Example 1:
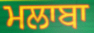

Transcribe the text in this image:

ਮਲਾਬਾ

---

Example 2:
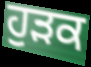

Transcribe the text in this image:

ਹੁੜਕ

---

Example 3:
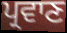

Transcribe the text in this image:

ਪ੍ਰਵਾਣ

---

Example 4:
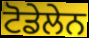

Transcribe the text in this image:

ਟੋਡੇਲੇਨ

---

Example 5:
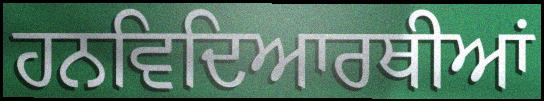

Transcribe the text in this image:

ਹਨਵਿਦਿਆਰਥੀਆਂ